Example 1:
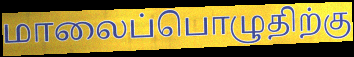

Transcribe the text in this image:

மாலைப்பொழுதிற்கு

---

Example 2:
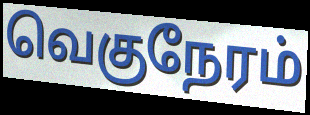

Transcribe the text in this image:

வெகுநேரம்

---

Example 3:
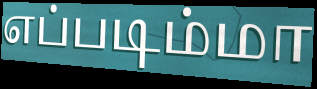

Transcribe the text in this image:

எப்படிம்மா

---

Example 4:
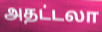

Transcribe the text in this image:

அதட்டலா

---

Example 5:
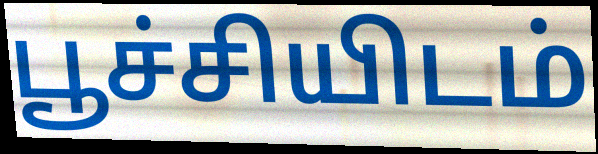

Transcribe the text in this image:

பூச்சியிடம்